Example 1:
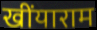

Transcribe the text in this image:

खींयाराम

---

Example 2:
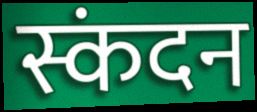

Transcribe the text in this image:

स्कंदन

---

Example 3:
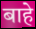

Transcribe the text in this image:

बाहे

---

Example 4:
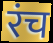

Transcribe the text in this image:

रंच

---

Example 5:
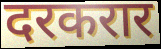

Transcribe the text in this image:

दरकरार